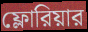
ফ্লোরিয়ার